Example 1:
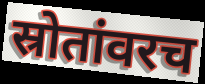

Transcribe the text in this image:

स्रोतांवरच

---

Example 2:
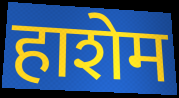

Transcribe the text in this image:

हाशेम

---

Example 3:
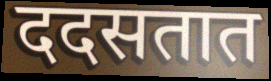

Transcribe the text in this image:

ददसतात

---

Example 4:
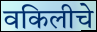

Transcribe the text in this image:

वकिलीचे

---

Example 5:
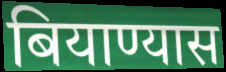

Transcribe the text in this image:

बियाण्यास